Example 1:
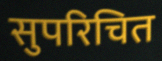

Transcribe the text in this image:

सुपरिचित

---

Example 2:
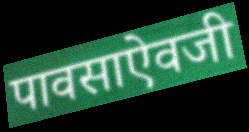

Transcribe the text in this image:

पावसाऐवजी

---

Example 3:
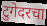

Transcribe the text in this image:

टुगेदरचा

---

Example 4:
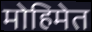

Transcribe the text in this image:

मोहिमेत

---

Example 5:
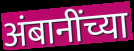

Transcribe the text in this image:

अंबानींच्या